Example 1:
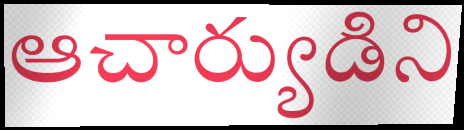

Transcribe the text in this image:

ఆచార్యుడిని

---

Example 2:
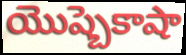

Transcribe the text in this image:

యొష్బెకాషా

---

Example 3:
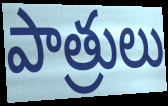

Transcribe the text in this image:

పాత్రులు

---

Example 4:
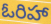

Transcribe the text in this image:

ఓరిహా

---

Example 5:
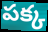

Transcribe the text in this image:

పక్క